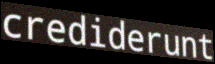
crediderunt